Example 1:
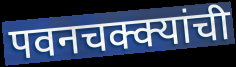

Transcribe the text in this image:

पवनचक्क्यांची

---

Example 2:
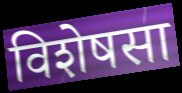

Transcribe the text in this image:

विशेषसा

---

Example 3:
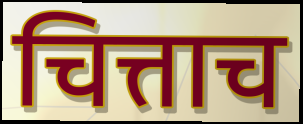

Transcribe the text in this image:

चित्ताच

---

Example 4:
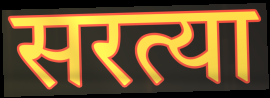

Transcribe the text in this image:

सरत्या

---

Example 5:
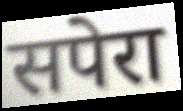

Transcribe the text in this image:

सपेरा